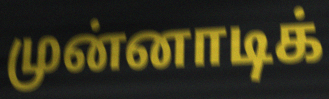
முன்னாடிக்